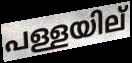
പള്ളയില്